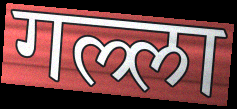
गल्ला